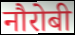
नौरोबी